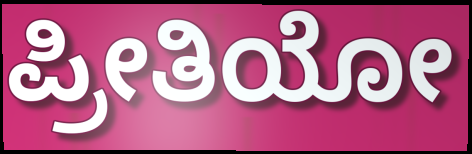
ಪ್ರೀತಿಯೋ